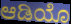
ಆಡಿಯೊ